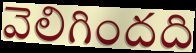
వెలిగిందది